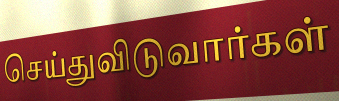
செய்துவிடுவார்கள்